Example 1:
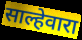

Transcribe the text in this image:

साल्हेवारा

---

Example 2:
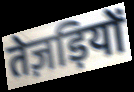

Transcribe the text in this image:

तेज़ड़ियों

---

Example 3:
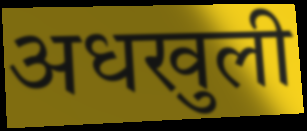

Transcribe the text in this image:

अधखुली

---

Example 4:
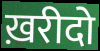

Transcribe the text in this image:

ख़रीदो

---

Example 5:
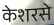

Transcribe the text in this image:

केशरसे